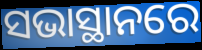
ସଭାସ୍ଥାନରେ